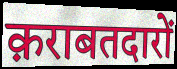
क़राबतदारों